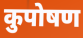
कुपोषण